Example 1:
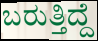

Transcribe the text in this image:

ಬರುತ್ತಿದ್ದೆ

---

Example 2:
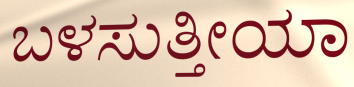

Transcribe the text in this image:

ಬಳಸುತ್ತೀಯಾ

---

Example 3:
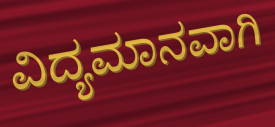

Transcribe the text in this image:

ವಿದ್ಯಮಾನವಾಗಿ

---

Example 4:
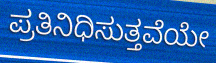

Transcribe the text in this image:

ಪ್ರತಿನಿಧಿಸುತ್ತವೆಯೇ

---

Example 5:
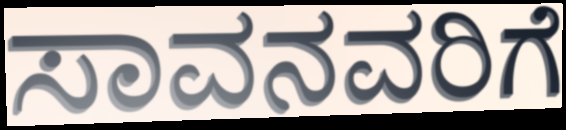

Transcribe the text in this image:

ಸಾವನವರಿಗೆ